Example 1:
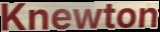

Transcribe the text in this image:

Knewton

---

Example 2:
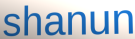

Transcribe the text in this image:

shanun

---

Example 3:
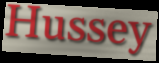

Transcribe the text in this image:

Hussey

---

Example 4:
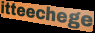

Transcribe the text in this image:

itteechege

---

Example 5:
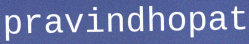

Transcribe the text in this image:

pravindhopat